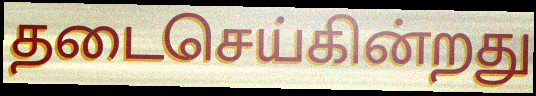
தடைசெய்கின்றது